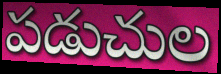
పడుచుల